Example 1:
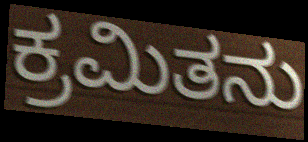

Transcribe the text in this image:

ಕ್ರಮಿತನು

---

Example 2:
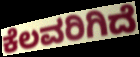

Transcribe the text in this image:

ಕೆಲವರಿಗಿದೆ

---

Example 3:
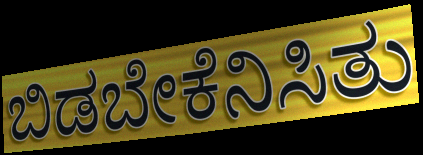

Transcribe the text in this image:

ಬಿಡಬೇಕೆನಿಸಿತು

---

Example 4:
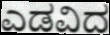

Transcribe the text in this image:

ಎಡವಿದ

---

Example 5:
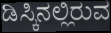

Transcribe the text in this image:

ಡಿಸ್ಕಿನಲ್ಲಿರುವ